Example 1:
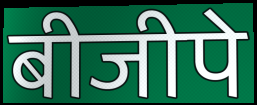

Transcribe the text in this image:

बीजीपे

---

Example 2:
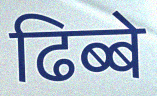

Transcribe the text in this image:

ढिब्बे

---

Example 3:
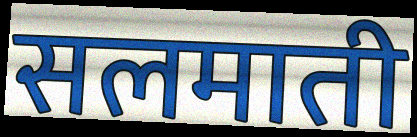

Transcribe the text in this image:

सलमाती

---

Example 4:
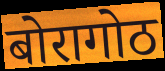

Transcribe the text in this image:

बोरागोठ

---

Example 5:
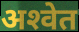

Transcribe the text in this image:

अश्‍वेत